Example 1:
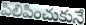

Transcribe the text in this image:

పిలిపించుకునే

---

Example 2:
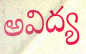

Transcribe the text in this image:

అవిద్య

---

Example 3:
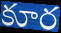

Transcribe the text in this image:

కూర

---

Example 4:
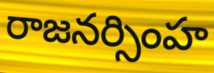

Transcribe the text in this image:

రాజనర్సింహ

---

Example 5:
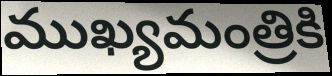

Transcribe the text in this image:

ముఖ్యమంత్రికి